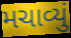
મચાવ્યું